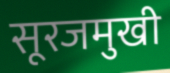
सूरजमुखी